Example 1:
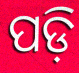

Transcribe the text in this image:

ପଡ଼ି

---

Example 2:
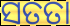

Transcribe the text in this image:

ସତତା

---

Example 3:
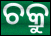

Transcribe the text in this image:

ଚକ୍ରୁ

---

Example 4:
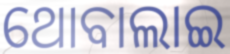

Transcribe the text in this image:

ଥୋବାଲାଇ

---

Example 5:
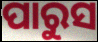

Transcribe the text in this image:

ପାରୁସ